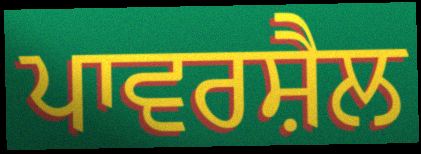
ਪਾਵਰਸ਼ੈਲ